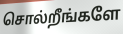
சொல்றீங்களே